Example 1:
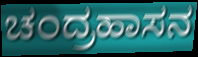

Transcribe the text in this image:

ಚಂದ್ರಹಾಸನ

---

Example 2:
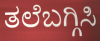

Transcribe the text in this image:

ತಲೆಬಗ್ಗಿಸಿ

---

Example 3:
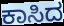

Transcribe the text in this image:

ಕಾಸಿದ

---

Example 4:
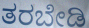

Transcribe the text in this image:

ತರಬೇಡಿ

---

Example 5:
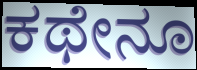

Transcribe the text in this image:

ಕಥೇನೂ